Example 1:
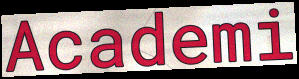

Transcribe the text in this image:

Academi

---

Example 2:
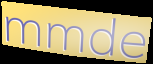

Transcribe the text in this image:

mmde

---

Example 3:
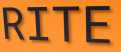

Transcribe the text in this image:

RITE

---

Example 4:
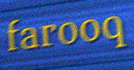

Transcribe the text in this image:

farooq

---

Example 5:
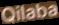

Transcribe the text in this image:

Qilaba